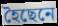
হৈছেনে